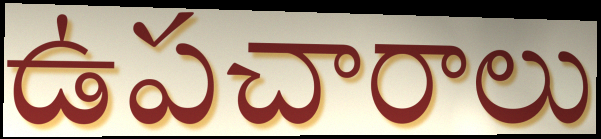
ఉపచారాలు